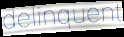
delinquent